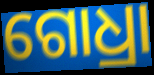
ଗୋଧ୍ରା